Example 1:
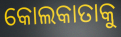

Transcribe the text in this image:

କୋଲକାତାକୁ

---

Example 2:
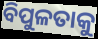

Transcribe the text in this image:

ବିପୁଳତାକୁ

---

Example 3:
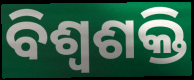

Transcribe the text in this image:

ବିଶ୍ଵଶକ୍ତି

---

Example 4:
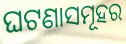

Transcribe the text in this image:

ଘଟଣାସମୂହର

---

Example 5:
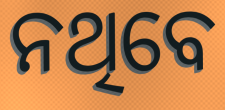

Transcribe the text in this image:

ନଥିବେ